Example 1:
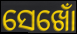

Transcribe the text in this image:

ସେଖୋଁ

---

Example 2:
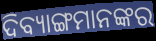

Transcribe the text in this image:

ଦିବ୍ୟାଙ୍ଗମାନଙ୍କର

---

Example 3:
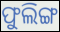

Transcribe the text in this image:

ଫୁଲିଙ୍ଗ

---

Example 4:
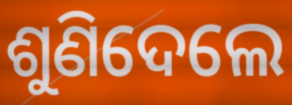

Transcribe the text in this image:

ଶୁଣିଦେଲେ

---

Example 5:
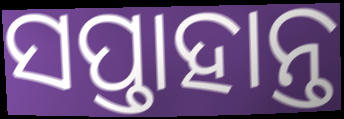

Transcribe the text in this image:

ସପ୍ତାହାନ୍ତ